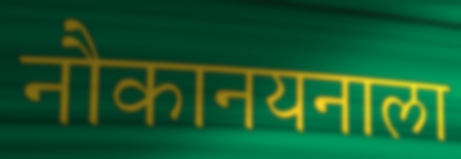
नौकानयनाला